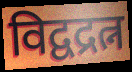
विद्वद्रत्न